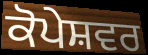
ਕੋਪੇਸ਼ਵਰ